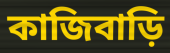
কাজিবাড়ি